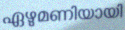
ഏഴുമണിയായി